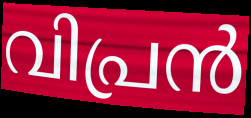
വിപ്രൻ